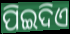
ପିଇଦିଏ